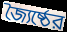
জ্যৈষ্ঠের